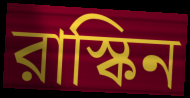
রাস্কিন